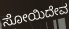
ಸೋಯಿದೇವ